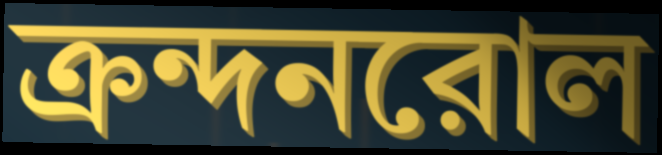
ক্রন্দনরোল